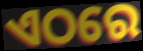
ଏଠରେ